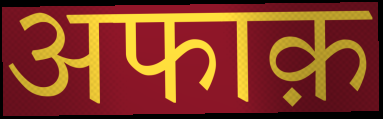
अफाक़